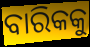
ବାରିକକୁ